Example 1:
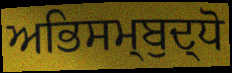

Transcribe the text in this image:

ਅਭਿਸਮ੍ਬੁਦ੍ਧੋ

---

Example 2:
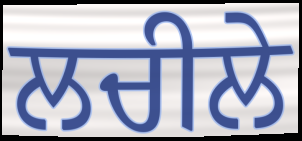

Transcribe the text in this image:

ਲਚੀਲੇ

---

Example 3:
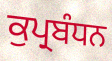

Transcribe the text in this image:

ਕੁਪ੍ਰਬੰਧਨ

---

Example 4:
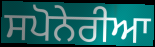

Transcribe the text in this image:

ਸਪੋਨੇਰੀਆ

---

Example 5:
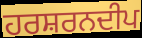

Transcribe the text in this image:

ਹਰਸ਼ਰਨਦੀਪ